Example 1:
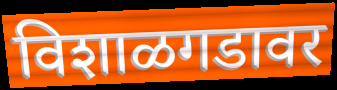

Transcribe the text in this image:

विशाळगडावर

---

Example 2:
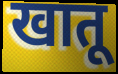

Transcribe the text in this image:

खातू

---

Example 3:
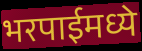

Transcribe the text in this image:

भरपाईमध्ये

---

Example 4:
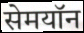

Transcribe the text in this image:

सेमयॉन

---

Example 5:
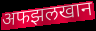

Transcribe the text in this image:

अफझलखान